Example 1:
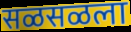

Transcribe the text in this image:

सळसळला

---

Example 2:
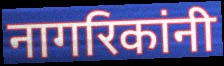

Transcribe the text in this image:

नागरिकांनी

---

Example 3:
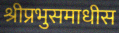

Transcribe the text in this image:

श्रीप्रभुसमाधीस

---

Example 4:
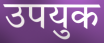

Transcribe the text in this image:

उपयुक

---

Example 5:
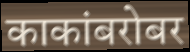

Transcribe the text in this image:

काकांबरोबर